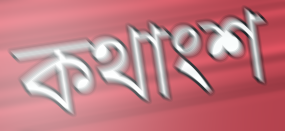
কথাংশ